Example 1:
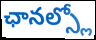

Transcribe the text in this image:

ఛానల్స్లో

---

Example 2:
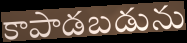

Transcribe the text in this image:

కాపాడబడును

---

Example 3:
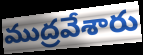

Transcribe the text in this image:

ముద్రవేశారు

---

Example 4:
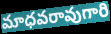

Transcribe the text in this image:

మాధవరావుగారి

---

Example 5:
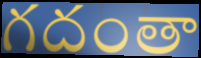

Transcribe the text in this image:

గదంతా